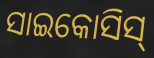
ସାଇକୋସିସ୍